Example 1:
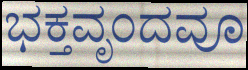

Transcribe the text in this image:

ಭಕ್ತವೃಂದವೂ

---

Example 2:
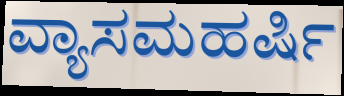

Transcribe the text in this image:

ವ್ಯಾಸಮಹರ್ಷಿ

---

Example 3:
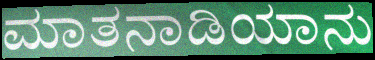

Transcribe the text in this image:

ಮಾತನಾಡಿಯಾನು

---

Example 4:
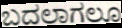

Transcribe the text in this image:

ಬದಲಾಗಲೂ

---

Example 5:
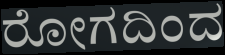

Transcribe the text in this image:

ರೋಗದಿಂದ